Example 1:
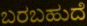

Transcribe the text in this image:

ಬರಬಹುದೆ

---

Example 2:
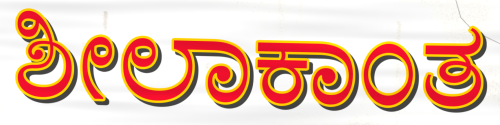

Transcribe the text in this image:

ಶೀಲಾಕಾಂತ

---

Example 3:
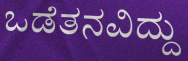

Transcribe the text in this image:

ಒಡೆತನವಿದ್ದು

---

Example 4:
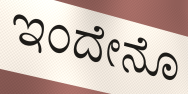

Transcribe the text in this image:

ಇಂದೇನೊ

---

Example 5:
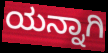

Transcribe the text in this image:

ಯನ್ನಾಗಿ